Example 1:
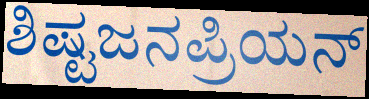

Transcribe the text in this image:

ಶಿಷ್ಟಜನಪ್ರಿಯನ್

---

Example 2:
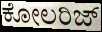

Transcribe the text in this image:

ಕೋಲರಿಜ್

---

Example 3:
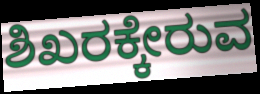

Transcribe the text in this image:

ಶಿಖರಕ್ಕೇರುವ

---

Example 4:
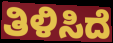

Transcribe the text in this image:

ತಿಳಿಸಿದೆ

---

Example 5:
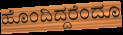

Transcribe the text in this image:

ಹೊಂದಿದ್ದರೆಂದೂ